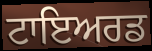
ਟਾਇਅਰਡ